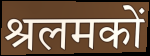
श्रलमकों